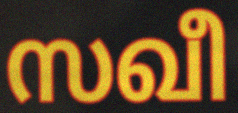
സഖീ